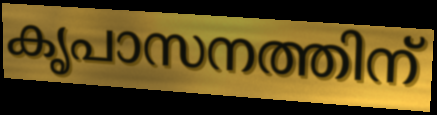
കൃപാസനത്തിന്